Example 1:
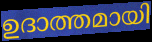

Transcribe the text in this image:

ഉദാത്തമായി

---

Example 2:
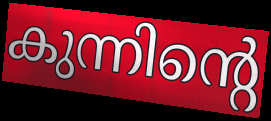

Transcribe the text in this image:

കുന്നിന്റെ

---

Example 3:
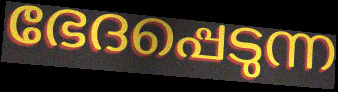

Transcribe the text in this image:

ഭേദപ്പെടുന്ന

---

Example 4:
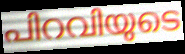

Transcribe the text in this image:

പിറവിയുടെ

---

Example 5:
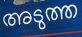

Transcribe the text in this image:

അടുത്ത